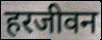
हरजीवन